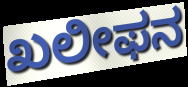
ಖಲೀಫನ